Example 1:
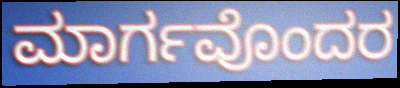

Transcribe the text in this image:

ಮಾರ್ಗವೊಂದರ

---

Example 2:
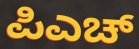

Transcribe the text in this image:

ಪಿಎಚ್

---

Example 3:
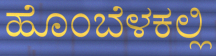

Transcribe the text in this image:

ಹೊಂಬೆಳಕಲ್ಲಿ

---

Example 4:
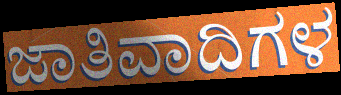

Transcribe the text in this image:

ಜಾತಿವಾದಿಗಳ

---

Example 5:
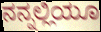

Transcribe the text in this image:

ನನ್ನಲ್ಲಿಯೂ